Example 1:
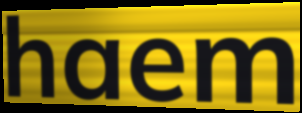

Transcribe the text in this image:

haem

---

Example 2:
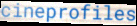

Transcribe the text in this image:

cineprofiles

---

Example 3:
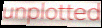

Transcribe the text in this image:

unplotted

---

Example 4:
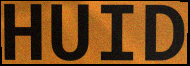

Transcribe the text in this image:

HUID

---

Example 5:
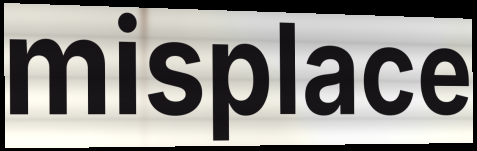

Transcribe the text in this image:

misplace